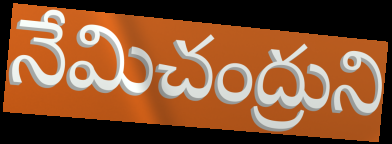
నేమిచంద్రుని